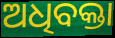
ଅଧିବକ୍ତା